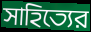
সাহিত্যের